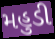
મહુડી